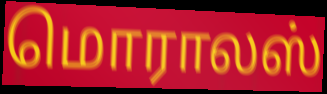
மொராலஸ்